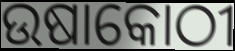
ଉଷାକୋଠୀ